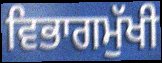
ਵਿਭਾਗਮੁੱਖੀ